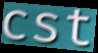
cst